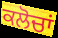
ਕਲੋਚਾਂ